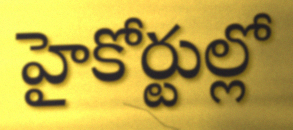
హైకోర్టుల్లో